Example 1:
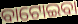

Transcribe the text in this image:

ବାଟୋଇବା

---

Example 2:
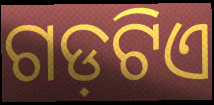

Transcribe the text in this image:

ଗଡ଼ଟିଏ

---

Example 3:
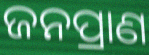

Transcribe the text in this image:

ଜନପ୍ରାଣ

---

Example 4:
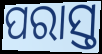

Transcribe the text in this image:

ପରାସ୍ତ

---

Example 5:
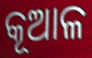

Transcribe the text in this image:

କୂଆଳ